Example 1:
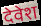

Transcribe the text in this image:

देवेश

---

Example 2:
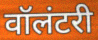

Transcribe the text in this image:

वॉलंटरी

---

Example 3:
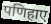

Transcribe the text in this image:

पणिहाए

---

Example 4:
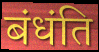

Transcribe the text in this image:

बंधंति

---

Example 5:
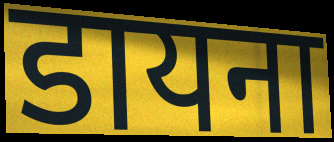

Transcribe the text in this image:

डायना